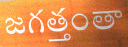
జగత్తంతా